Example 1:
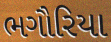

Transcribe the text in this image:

ભગૌરિયા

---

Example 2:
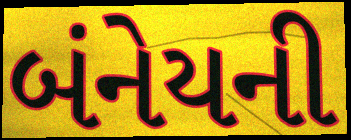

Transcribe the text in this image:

બંનેયની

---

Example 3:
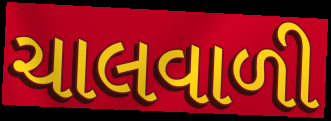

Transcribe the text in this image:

ચાલવાળી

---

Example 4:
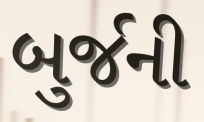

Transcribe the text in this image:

બુર્જની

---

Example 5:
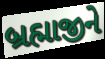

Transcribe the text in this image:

બ્રહ્માજીને